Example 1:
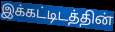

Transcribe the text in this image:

இக்கட்டிடத்தின்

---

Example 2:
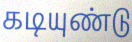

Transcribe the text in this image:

கடியுண்டு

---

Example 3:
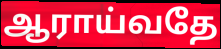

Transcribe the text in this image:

ஆராய்வதே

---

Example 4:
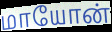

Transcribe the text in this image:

மாயோன்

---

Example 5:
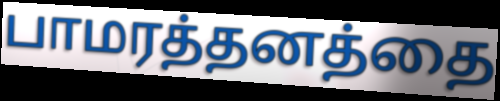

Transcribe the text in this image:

பாமரத்தனத்தை